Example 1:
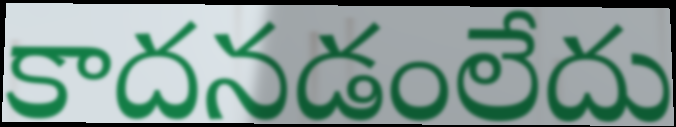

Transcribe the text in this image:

కాదనడంలేదు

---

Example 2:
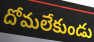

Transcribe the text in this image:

దోమలేకుండు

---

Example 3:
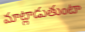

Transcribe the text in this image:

మాట్లాడుతుంటా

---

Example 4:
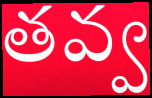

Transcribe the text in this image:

తవ్వ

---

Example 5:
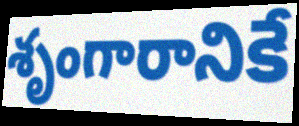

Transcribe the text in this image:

శృంగారానికే